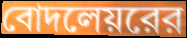
বোদলেয়রের